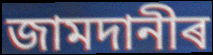
জামদানীৰ